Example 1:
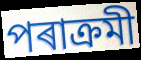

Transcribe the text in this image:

পৰাক্ৰমী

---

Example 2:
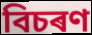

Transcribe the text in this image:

বিচৰণ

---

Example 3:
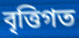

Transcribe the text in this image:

বৃত্তিগত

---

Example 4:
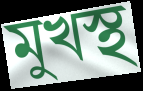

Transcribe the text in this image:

মুখস্থ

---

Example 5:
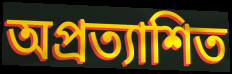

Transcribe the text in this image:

অপ্ৰত্যাশিত